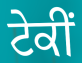
ਟੇਕੀਂ